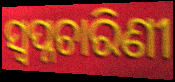
ସ୍ୱପ୍ନଚାରିଣୀ